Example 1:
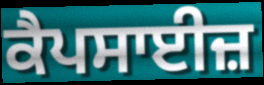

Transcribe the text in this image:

ਕੈਪਸਾਈਜ਼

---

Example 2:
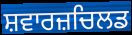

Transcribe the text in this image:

ਸ਼ਵਾਰਜ਼ਚਿਲਡ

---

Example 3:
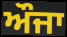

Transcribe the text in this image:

ਔਜਾ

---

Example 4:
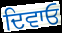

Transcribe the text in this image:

ਦਿਵਾਓ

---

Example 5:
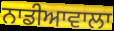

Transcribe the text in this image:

ਨਾਡੀਆਵਾਲਾ